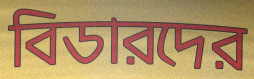
বিডারদের